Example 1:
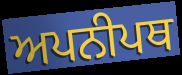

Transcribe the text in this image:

ਅਪਨੀਪਥ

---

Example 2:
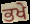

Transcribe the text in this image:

ਭਖੇ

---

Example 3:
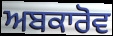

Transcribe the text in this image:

ਅਬਕਾਰੋਵ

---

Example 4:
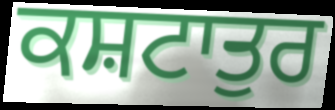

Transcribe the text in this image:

ਕਸ਼ਟਾਤੁਰ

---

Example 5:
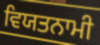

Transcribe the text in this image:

ਵਿਯਤਨਾਮੀ